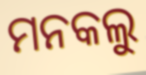
ମନକଲୁ